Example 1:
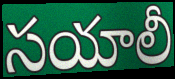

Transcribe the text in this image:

సయాలీ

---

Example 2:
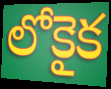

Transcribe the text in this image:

లోకైక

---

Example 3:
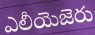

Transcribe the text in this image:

ఎలీయెజెరు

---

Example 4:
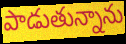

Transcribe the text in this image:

పాడుతున్నాను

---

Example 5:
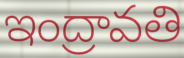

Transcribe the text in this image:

ఇంద్రావతి